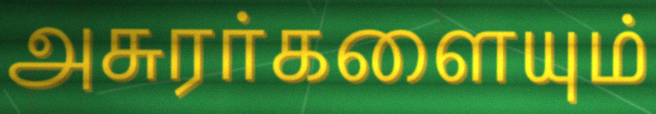
அசுரர்களையும்